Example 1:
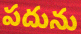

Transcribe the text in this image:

పదును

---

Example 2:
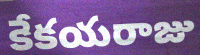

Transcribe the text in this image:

కేకయరాజు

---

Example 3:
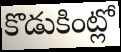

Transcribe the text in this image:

కొడుకింట్లో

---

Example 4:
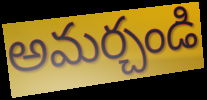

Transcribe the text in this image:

అమర్చండి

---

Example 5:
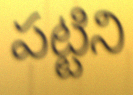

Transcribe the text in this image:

పట్టిని